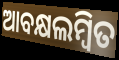
ଆବକ୍ଷଲମ୍ବିତ